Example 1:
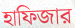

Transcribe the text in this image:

হাফিজার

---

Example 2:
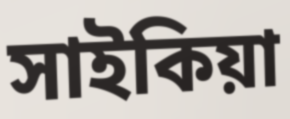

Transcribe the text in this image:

সাইকিয়া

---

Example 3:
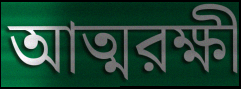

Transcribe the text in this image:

আত্মরক্ষী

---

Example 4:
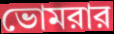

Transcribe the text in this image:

ভোমরার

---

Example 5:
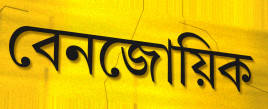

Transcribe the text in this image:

বেনজোয়িক